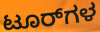
ಟೂರ್‌ಗಳ